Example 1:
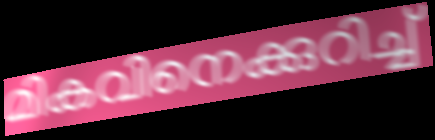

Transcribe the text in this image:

മികവിനെക്കുറിച്ച്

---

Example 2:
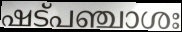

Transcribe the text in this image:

ഷട്പഞ്ചാശഃ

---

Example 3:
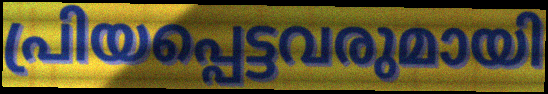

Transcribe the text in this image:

പ്രിയപ്പെട്ടവരുമായി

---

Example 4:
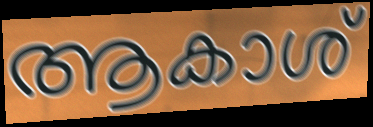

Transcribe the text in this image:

ആകാശ്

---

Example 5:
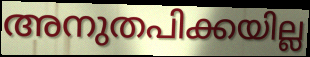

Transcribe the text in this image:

അനുതപിക്കയില്ല